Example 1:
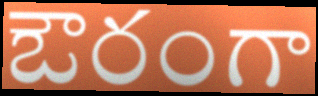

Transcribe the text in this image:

ఔరంగా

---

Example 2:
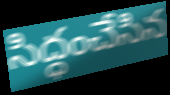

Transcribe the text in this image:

సిద్ధంచేసిన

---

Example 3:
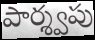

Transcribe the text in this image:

పార్శ్వపు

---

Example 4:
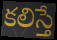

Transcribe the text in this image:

కలిస్తే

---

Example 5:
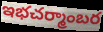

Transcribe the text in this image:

ఇభచర్మాంబర